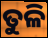
ତୁଳି